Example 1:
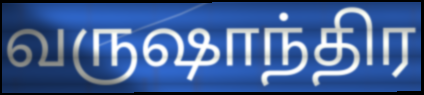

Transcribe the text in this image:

வருஷாந்திர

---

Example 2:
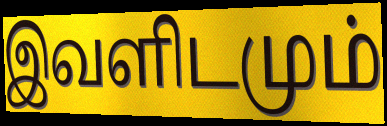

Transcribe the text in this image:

இவளிடமும்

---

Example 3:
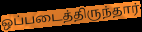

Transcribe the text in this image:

ஒப்படைத்திருந்தார்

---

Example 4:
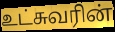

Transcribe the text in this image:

உட்சுவரின்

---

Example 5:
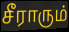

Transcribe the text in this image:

சீராரும்